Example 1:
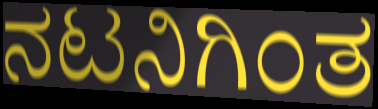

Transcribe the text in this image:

ನಟನಿಗಿಂತ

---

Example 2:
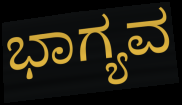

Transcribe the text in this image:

ಭಾಗ್ಯವ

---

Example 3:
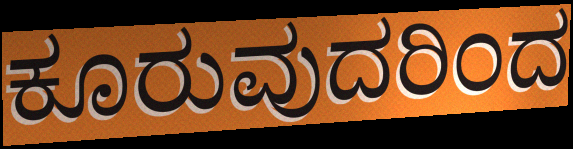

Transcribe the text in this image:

ಕೂರುವುದರಿಂದ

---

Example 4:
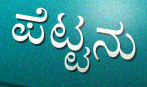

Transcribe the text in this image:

ಪೆಟ್ಟನು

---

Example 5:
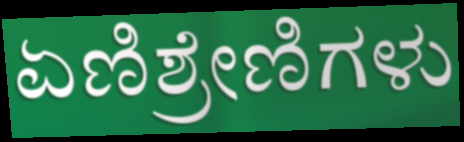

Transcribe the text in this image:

ಏಣಿಶ್ರೇಣಿಗಳು